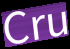
Cru